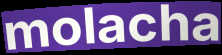
molacha